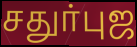
சதுர்புஜ